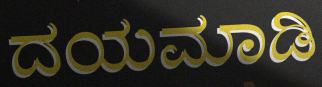
ದಯಮಾಡಿ